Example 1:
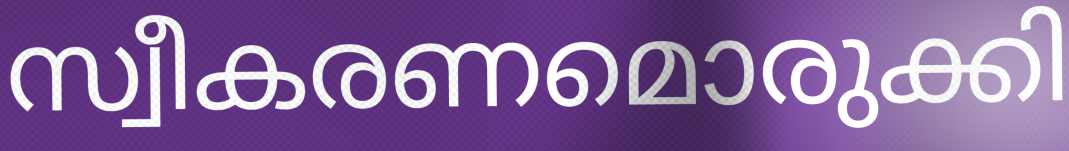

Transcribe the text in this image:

സ്വീകരണമൊരുക്കി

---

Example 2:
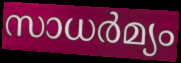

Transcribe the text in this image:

സാധർമ്യം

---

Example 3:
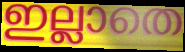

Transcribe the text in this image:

ഇല്ലാതെ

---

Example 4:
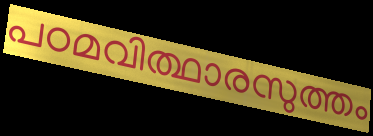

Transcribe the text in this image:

പഠമവിത്ഥാരസുത്തം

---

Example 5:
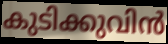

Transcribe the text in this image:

കുടിക്കുവിൻ